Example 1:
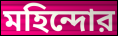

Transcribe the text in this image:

মহিন্দোর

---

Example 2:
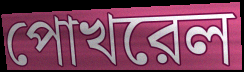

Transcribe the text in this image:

পোখরেল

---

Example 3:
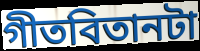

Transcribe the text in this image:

গীতবিতানটা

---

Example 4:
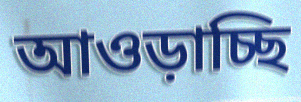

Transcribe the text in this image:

আওড়াচ্ছি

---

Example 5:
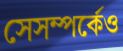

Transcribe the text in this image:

সেসম্পর্কেও